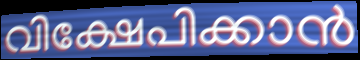
വിക്ഷേപിക്കാൻ